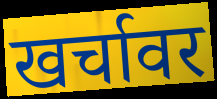
खर्चावर